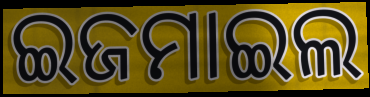
ଇଜମାଇଲ